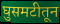
घुसमटीतून